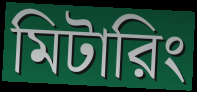
মিটারিং